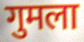
गुमला